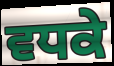
ਵਧਕੇ